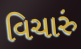
વિચારું